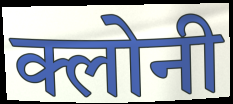
क्लोनी